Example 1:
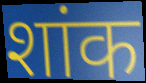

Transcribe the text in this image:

शांक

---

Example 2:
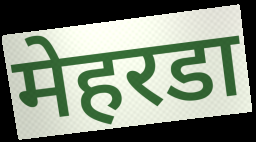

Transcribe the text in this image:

मेहरडा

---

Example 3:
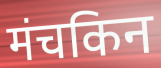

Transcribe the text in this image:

मंचकिन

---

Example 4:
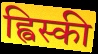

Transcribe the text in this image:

ह्विस्की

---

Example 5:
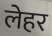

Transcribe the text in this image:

लेहर